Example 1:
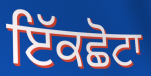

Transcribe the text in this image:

ਇੱਕਛੋਟਾ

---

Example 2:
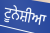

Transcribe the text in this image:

ਟੂਨੇਸ਼ੀਆ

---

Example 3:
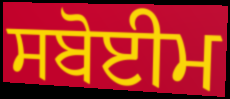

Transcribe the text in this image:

ਸਬੋਈਮ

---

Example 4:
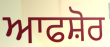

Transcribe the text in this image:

ਆਫਸ਼ੋਰ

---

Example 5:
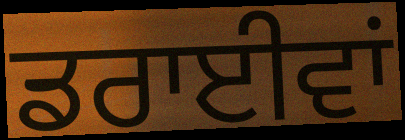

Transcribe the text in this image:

ਡਰਾਈਵਾਂ